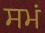
ਸਮਂ